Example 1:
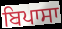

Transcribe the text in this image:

ਬਿਪਾਸਾ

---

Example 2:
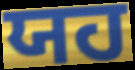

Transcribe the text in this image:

ਯਹ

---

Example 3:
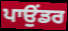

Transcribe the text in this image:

ਪਾਉਂਡਰ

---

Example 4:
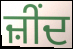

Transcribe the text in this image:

ਜ਼ੀਂਦ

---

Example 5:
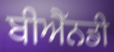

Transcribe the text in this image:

ਬੀਐੱਨਡੀ